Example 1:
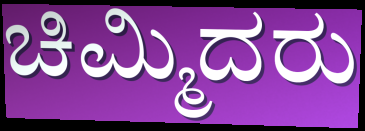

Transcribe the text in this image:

ಚಿಮ್ಮಿದರು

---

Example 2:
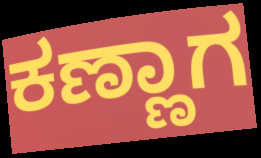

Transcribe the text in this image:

ಕಣ್ಣಾಗ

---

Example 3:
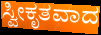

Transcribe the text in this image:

ಸ್ವೀಕೃತವಾದ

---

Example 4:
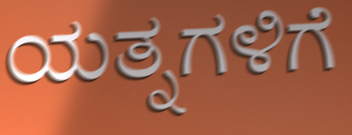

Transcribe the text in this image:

ಯತ್ನಗಳಿಗೆ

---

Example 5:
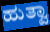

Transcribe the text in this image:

ಹುತ್ವಾ